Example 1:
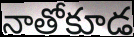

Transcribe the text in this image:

నాతోకూడ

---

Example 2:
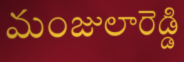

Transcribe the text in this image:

మంజులారెడ్డి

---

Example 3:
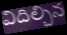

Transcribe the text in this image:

విదిల్చిన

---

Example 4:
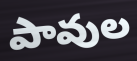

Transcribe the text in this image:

పావుల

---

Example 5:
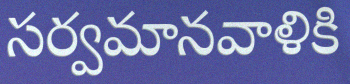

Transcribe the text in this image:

సర్వమానవాళికి